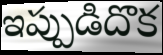
ఇప్పుడిదొక